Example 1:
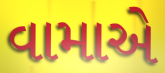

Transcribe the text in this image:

વામાએ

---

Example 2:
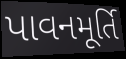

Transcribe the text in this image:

પાવનમૂર્તિ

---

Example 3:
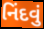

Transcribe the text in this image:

નિંદવું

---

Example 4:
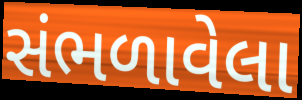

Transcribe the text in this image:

સંભળાવેલા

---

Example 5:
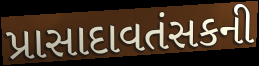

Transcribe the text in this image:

પ્રાસાદાવતંસકની